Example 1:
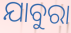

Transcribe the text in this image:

ଯାବୁରା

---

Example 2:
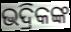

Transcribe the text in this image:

ଭଦ୍ରିକଙ୍କ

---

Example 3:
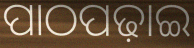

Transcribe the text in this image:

ପାଠପଢ଼ାଇ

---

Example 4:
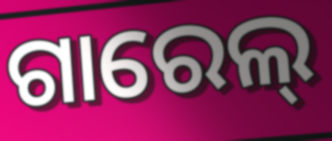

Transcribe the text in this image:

ଗାରେଲ୍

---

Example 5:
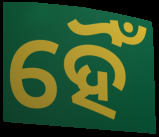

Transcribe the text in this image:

ହୈଁ